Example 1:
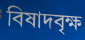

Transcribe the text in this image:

বিষাদবৃক্ষ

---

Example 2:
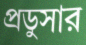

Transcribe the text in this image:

প্রডুসার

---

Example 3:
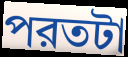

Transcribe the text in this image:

পরতটা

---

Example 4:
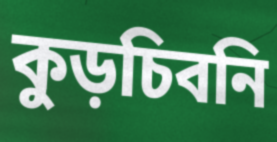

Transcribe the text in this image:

কুড়চিবনি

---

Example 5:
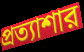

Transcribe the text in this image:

প্রত্যাশার